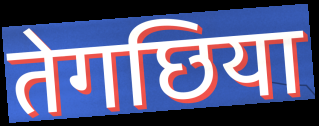
तेगछिया